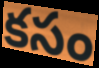
కసం